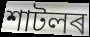
শাটলৰ